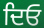
ਦਿਓ